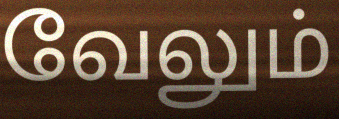
வேலும்